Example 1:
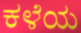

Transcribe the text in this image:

ಕಳೆಯ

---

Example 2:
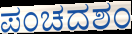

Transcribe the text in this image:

ಪಂಚದಶಂ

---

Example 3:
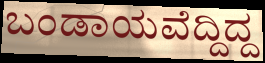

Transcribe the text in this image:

ಬಂಡಾಯವೆದ್ದಿದ್ದ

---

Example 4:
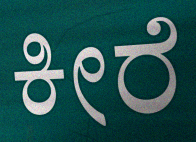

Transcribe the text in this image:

ಕೀರೆ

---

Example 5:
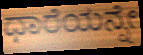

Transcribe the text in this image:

ಧಾರೆಯನ್ನೇ